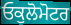
ਓਕੁਲੋਮੋਟਰ